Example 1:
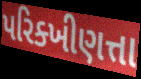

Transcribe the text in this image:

પરિક્ખીણત્તા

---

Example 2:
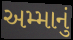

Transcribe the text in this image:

અમ્માનું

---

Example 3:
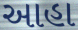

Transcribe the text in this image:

આહા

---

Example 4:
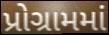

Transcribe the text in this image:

પ્રોગ્રામમાં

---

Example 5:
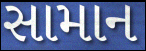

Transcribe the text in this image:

સામાન